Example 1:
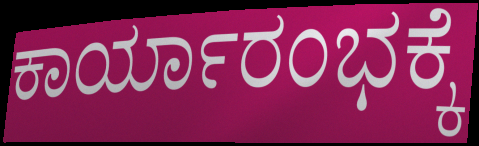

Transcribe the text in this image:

ಕಾರ್ಯಾರಂಭಕ್ಕೆ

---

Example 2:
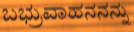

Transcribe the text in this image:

ಬಭ್ರುವಾಹನನನ್ನು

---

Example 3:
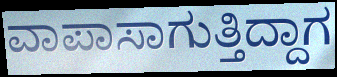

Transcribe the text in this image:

ವಾಪಾಸಾಗುತ್ತಿದ್ದಾಗ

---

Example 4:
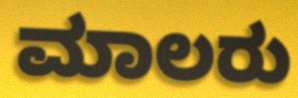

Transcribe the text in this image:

ಮಾಲರು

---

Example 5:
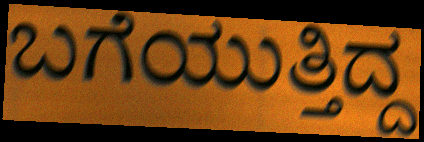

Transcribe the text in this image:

ಬಗೆಯುತ್ತಿದ್ದ